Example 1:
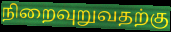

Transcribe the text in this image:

நிறைவுறுவதற்கு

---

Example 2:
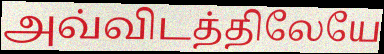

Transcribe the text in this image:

அவ்விடத்திலேயே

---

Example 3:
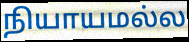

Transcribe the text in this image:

நியாயமல்ல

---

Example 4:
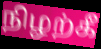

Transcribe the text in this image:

நிழற்கீ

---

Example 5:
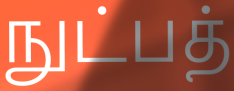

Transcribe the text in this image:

நுட்பத்